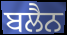
ਬਲੈਨ